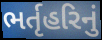
ભર્તૃહરિનું